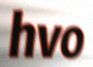
hvo